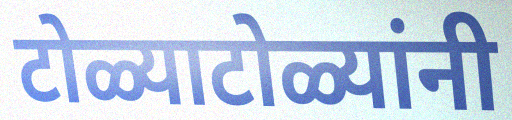
टोळ्याटोळ्यांनी